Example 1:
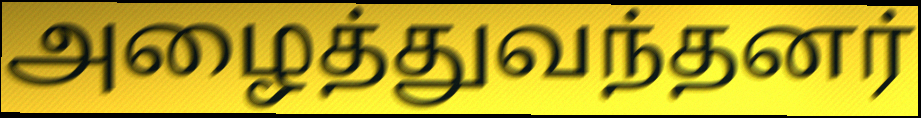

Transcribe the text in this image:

அழைத்துவந்தனர்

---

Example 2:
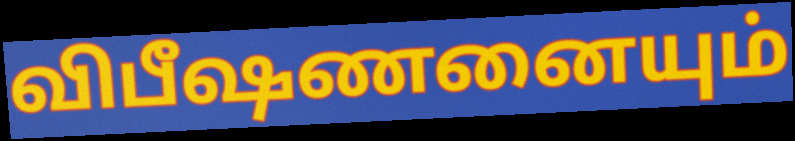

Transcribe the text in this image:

விபீஷணனையும்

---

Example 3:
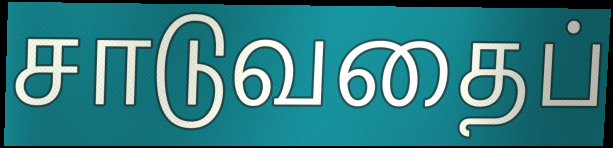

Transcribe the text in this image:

சாடுவதைப்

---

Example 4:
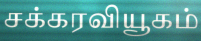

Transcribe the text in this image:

சக்கரவியூகம்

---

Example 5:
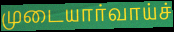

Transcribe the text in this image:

முடையார்வாய்ச்